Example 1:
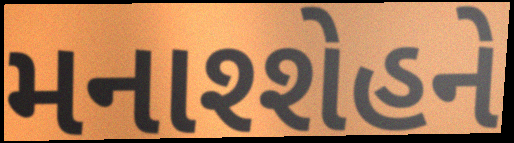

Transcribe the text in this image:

મનાશ્શેહને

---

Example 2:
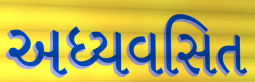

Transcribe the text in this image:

અધ્યવસિત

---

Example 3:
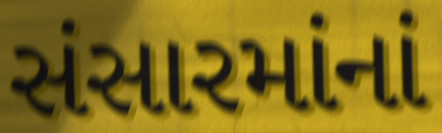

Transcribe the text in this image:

સંસારમાંનાં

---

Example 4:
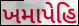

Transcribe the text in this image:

ખમાપેહિ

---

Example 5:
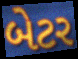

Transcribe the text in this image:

બેટર